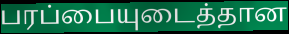
பரப்பையுடைத்தான